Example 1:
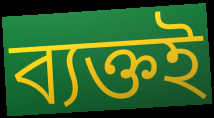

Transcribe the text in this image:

ব্যক্তই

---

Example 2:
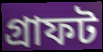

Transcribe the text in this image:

গ্রাফট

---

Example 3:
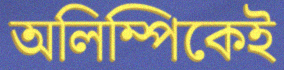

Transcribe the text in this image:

অলিম্পিকেই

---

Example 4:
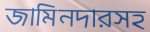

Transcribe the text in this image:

জামিনদারসহ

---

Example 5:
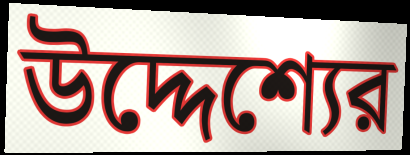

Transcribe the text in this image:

উদ্দেশ্যের